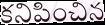
కనిపించిన